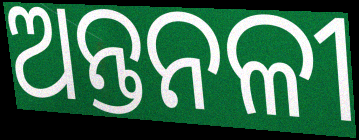
ଅନ୍ତନଳୀ